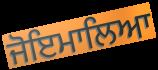
ਜੋਇਮਾਲਿਆ